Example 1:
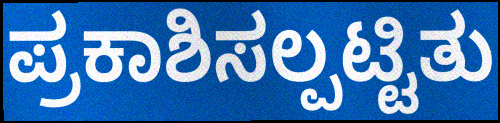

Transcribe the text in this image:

ಪ್ರಕಾಶಿಸಲ್ಪಟ್ಟಿತು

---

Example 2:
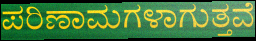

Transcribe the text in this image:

ಪರಿಣಾಮಗಳಾಗುತ್ತವೆ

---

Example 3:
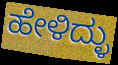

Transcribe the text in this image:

ಹೇಳಿದ್ಳು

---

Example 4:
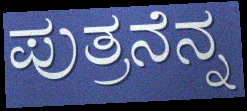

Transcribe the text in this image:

ಪುತ್ರನೆನ್ನ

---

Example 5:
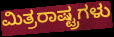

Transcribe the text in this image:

ಮಿತ್ರರಾಷ್ಟ್ರಗಳು